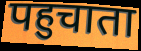
पहुचाता